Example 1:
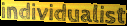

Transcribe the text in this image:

individualist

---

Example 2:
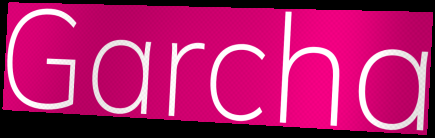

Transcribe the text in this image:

Garcha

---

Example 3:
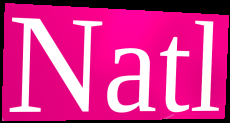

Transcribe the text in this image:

Natl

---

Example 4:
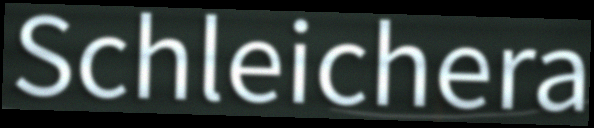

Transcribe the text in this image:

Schleichera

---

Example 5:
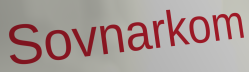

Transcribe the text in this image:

Sovnarkom